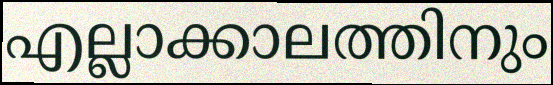
എല്ലാക്കാലത്തിനും